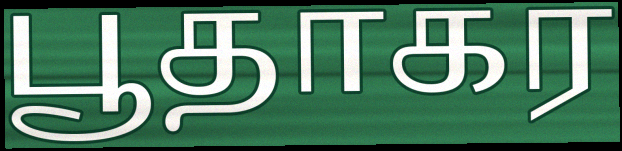
பூதாகர